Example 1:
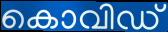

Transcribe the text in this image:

കൊവിഡ്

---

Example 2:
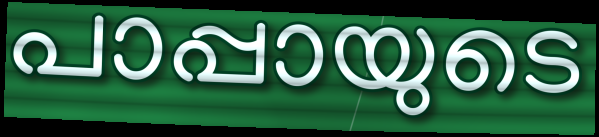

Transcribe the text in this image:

പാപ്പായുടെ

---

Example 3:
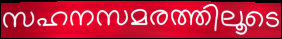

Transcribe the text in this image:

സഹനസമരത്തിലൂടെ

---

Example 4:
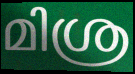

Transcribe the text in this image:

മിശ്ര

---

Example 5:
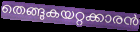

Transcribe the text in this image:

തെങ്ങുകയറ്റക്കാരൻ